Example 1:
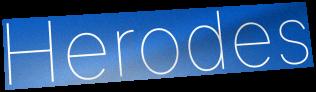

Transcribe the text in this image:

Herodes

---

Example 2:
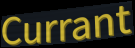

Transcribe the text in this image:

Currant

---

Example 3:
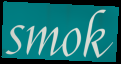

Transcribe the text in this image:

smok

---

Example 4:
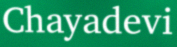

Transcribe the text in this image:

Chayadevi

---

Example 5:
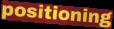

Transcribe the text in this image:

positioning